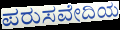
ಪರುಸವೇದಿಯ